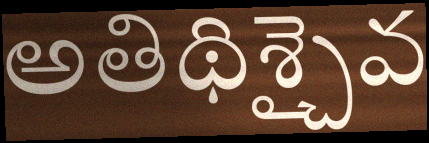
అతిథిశ్చైవ